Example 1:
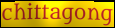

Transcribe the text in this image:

chittagong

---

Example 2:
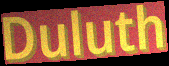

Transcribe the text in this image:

Duluth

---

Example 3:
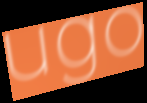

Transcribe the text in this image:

ugo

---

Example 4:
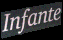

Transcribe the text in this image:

Infante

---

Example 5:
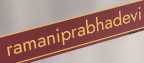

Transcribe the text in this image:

ramaniprabhadevi